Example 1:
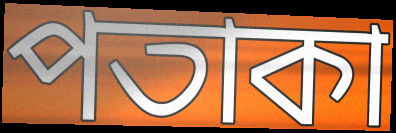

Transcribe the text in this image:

পতাকা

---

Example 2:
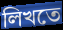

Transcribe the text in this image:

লিখতে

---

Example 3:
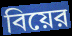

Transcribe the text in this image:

বিয়ের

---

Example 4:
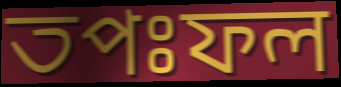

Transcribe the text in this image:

তপঃফল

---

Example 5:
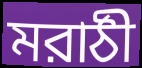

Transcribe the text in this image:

মরাঠী